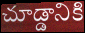
చూడ్డానికి